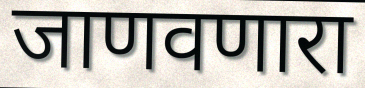
जाणवणारा